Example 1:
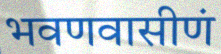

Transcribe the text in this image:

भवणवासीणं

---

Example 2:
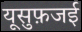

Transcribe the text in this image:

यूसुफ़जई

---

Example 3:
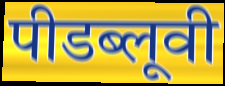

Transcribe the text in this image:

पीडब्लूवी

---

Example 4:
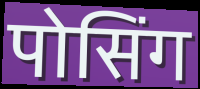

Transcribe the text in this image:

पोसिंग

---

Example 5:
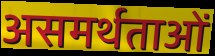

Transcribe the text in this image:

असमर्थताओं